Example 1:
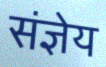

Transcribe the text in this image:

संज्ञेय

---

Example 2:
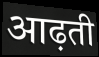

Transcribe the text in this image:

आढ़ती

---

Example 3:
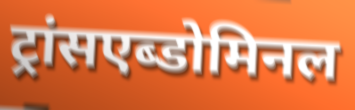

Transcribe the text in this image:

ट्रांसएब्डोमिनल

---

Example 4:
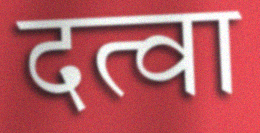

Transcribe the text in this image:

दत्वा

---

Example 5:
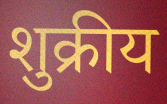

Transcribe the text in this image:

शुक्रीय